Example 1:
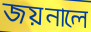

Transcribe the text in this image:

জয়নালে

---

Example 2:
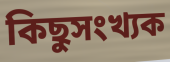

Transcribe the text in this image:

কিছুসংখ্যক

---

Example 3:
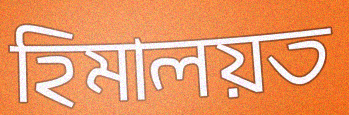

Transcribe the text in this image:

হিমালয়ত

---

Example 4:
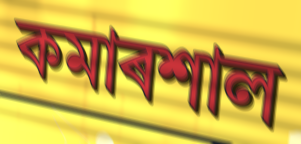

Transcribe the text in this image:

কমাৰশাল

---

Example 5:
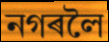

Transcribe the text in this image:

নগৰলৈ